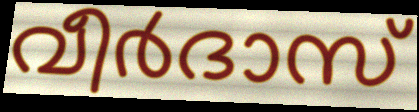
വീർദാസ്